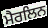
ਮੈਰਲਿਨ